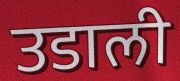
उडाली